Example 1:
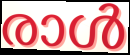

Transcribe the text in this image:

രാൾ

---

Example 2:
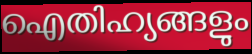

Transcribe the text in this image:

ഐതിഹ്യങ്ങളും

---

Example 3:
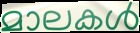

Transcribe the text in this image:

മാലകൾ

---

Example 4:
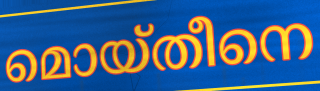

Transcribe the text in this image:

മൊയ്തീനെ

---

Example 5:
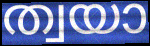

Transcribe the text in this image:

ത്വയാ